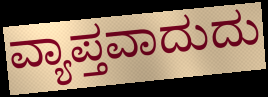
ವ್ಯಾಪ್ತವಾದುದು